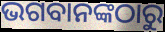
ଭଗବାନଙ୍କଠାରୁ